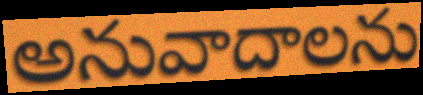
అనువాదాలను